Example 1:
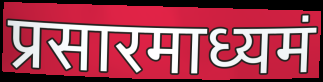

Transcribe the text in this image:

प्रसारमाध्यमं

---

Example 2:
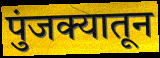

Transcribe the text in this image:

पुंजक्यातून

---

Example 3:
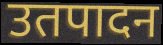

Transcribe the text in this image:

उतपादन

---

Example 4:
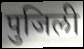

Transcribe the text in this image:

पुजिली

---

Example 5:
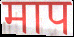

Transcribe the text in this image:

माप